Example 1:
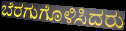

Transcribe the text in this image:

ಬೆರಗುಗೊಳಿಸಿದರು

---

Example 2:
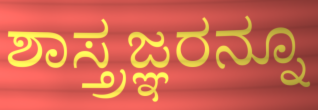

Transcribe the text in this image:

ಶಾಸ್ತ್ರಜ್ಞರನ್ನೂ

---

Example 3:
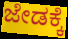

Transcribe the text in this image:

ಜೇಡಕ್ಕೆ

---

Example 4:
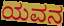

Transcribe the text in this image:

ಯವನ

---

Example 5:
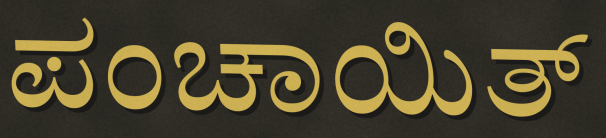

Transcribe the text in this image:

ಪಂಚಾಯಿತ್